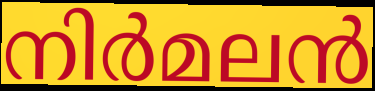
നിർമലൻ